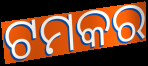
ଟମକର